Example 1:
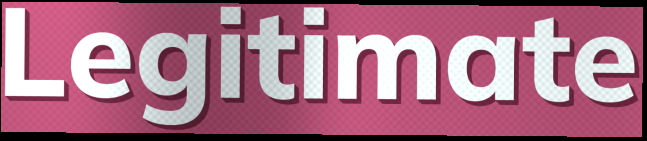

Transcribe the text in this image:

Legitimate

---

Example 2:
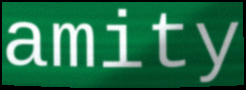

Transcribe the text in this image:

amity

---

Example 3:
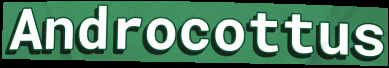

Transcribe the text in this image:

Androcottus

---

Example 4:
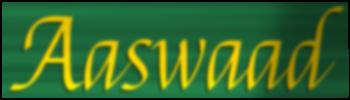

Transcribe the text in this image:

Aaswaad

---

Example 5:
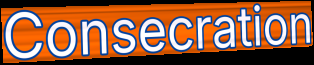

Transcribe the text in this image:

Consecration